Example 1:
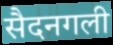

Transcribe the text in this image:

सैदनगली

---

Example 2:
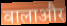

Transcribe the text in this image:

वालाऔर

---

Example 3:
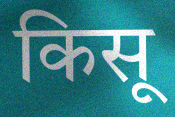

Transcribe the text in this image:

किसू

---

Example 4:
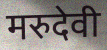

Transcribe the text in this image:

मरुदेवी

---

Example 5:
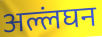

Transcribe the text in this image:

अल्लंघन